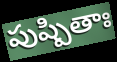
పుష్పితాః